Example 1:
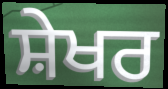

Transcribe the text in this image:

ਸ਼ੇਖਰ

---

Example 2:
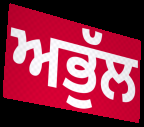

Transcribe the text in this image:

ਅਭੁੱਲ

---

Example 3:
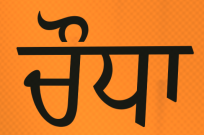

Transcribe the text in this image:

ਚੌਧਾ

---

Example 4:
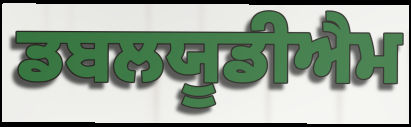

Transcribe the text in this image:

ਡਬਲਯੂਡੀਐਮ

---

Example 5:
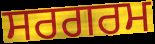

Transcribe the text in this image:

ਸਰਗਰਮ